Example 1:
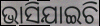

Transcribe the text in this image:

ଭାସିଯାଇଚି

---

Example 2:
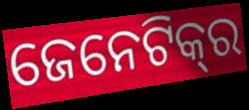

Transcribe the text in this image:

ଜେନେଟିକ୍‌ର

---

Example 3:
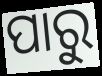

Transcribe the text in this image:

ପାରୁ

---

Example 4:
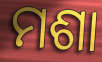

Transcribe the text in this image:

ମଶା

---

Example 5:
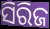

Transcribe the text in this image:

ସିରିଜ